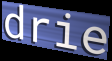
drie